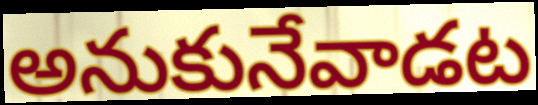
అనుకునేవాడట